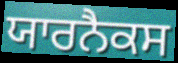
ਯਾਰਨੈਕਸ